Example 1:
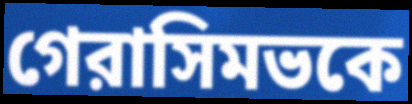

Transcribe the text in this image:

গেরাসিমভকে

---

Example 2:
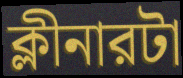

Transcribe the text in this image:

ক্লীনারটা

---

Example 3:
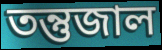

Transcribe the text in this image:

তন্তুজাল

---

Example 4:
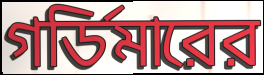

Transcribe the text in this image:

গর্ডিমারের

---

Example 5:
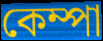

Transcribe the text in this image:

কেম্পা